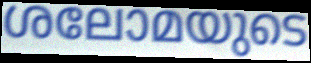
ശലോമയുടെ